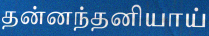
தன்னந்தனியாய்